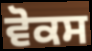
ਵੋਕਸ